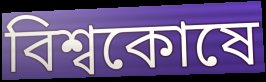
বিশ্বকোষে